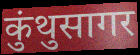
कुंथुसागर